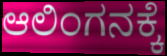
ಆಲಿಂಗನಕ್ಕೆ